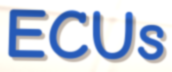
ECUs